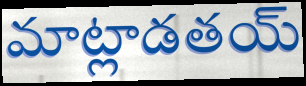
మాట్లాడతయ్